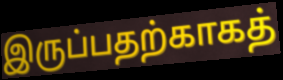
இருப்பதற்காகத்